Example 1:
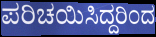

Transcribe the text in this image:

ಪರಿಚಯಿಸಿದ್ದರಿಂದ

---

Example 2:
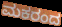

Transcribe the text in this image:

ಮಕರಂದ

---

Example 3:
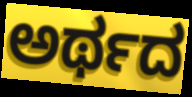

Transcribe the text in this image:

ಅರ್ಥದ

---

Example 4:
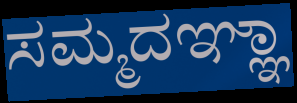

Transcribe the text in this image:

ಸಮ್ಮದಞ್ಞಾ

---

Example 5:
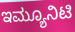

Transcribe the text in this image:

ಇಮ್ಯೂನಿಟಿ